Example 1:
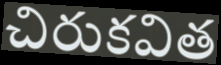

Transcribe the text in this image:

చిరుకవిత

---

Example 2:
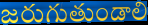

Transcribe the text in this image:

జరుగుతుండాలి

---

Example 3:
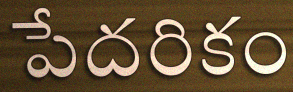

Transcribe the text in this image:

పేదరికం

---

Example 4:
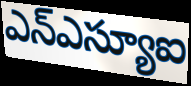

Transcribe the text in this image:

ఎన్ఎస్యూఐ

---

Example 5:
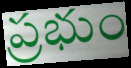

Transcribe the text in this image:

ప్రభుం